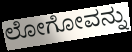
ಲೋಗೋವನ್ನು